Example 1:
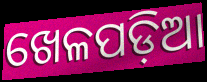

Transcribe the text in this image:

ଖେଳପଡ଼ିଆ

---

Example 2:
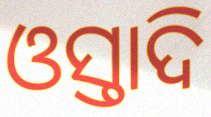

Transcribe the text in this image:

ଓସ୍ତାଦି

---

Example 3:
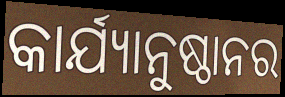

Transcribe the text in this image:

କାର୍ଯ୍ୟାନୁଷ୍ଠାନର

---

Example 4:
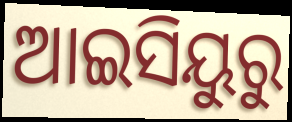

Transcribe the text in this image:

ଆଇସିୟୁରୁ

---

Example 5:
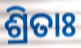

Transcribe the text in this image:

ଶ୍ରିତାଃ